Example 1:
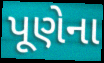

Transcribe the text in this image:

પૂણેના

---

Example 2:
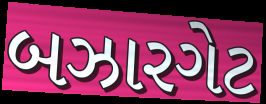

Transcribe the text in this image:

બઝારગેટ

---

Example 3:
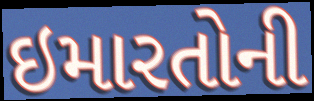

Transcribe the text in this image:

ઇમારતોની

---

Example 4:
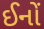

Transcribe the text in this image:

ઈનોં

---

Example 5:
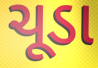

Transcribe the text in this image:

ચૂડા